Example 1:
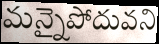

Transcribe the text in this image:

మన్నైపోదువని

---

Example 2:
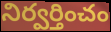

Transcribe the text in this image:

నిర్వర్తించం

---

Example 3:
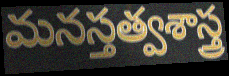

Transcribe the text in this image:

మనస్తత్వశాస్త్ర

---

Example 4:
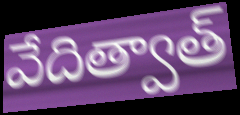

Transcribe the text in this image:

వేదిత్వాత్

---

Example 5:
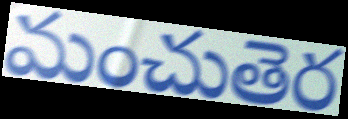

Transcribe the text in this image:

మంచుతెర